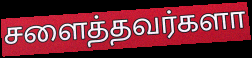
சளைத்தவர்களா